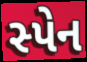
સ્પેન